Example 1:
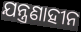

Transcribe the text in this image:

ଯନ୍ତ୍ରଣାହୀନ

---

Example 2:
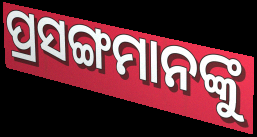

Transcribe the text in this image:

ପ୍ରସଙ୍ଗମାନଙ୍କୁ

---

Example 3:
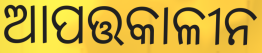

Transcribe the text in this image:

ଆପତ୍ତକାଳୀନ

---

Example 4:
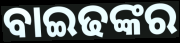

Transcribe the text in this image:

ବାଇଢଙ୍କର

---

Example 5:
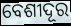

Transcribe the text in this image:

ବେଶୀଦୂର